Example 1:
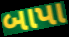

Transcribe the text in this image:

બાપા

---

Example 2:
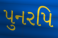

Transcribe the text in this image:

પુનરપિ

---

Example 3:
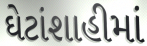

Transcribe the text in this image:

ઘેટાંશાહીમાં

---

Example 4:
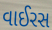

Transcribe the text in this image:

વાઈરસ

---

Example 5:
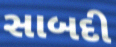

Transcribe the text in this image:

સાબદી